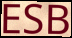
ESB